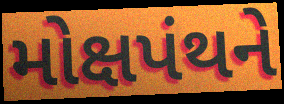
મોક્ષપંથને